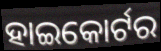
ହାଇକୋର୍ଟର